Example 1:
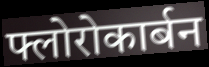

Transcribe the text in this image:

फ्लोरोकार्बन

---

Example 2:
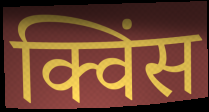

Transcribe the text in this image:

क्विंस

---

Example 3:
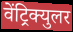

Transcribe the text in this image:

वेंट्रिक्युलर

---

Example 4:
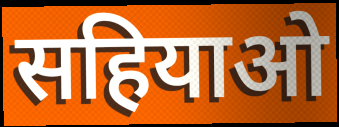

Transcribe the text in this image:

सहियाओ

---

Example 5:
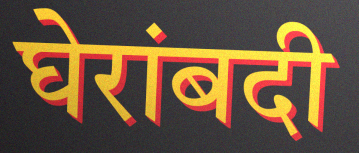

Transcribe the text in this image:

घेरांबदी